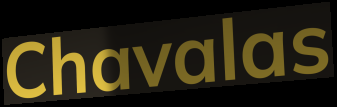
Chavalas